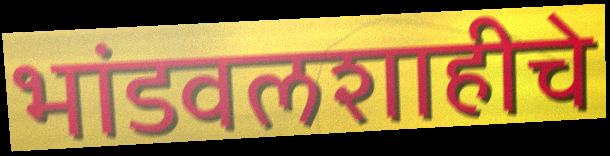
भांडवलशाहीचे